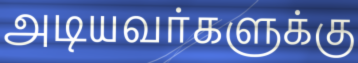
அடியவர்களுக்கு